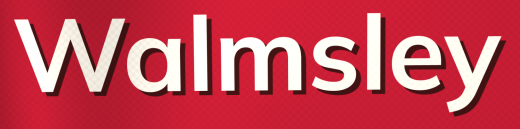
Walmsley